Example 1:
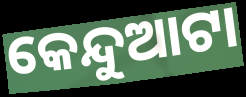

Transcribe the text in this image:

କେନ୍ଦୁଆଟା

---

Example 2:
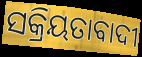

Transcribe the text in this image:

ସକ୍ରିୟତାବାଦୀ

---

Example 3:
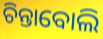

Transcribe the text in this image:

ଚିନ୍ତାବୋଲି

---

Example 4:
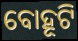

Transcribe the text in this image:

ବୋହୂଟି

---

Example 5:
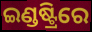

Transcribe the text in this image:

ଇଣ୍ଡଷ୍ଟ୍ରିରେ